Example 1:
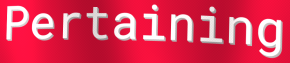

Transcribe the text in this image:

Pertaining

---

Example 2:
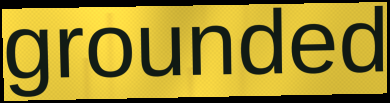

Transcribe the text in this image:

grounded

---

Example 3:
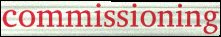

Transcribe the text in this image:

commissioning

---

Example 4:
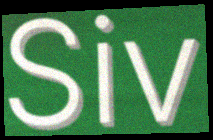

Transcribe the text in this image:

Siv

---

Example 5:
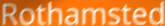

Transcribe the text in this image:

Rothamsted